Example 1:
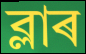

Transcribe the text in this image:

ব্লাৰ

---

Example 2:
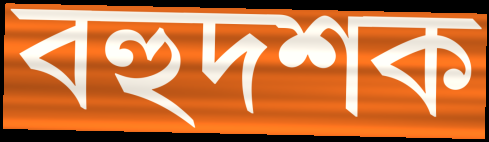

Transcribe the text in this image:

বহুদশক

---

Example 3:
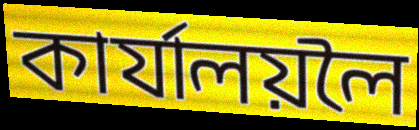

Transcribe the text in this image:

কাৰ্যালয়লৈ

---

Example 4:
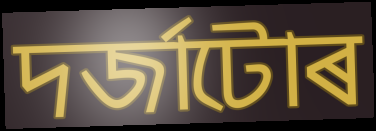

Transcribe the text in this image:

দৰ্জাটোৰ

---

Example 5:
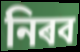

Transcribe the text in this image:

নিৰব